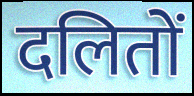
दलितों